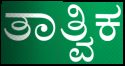
ತಾತ್ವಿಕ